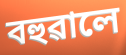
বহুৱালে